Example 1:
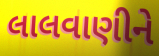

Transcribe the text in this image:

લાલવાણીને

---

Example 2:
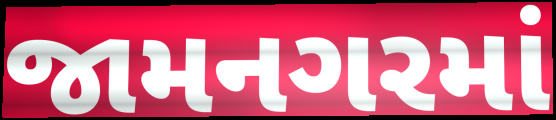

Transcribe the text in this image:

જામનગરમાં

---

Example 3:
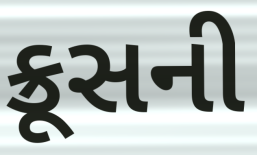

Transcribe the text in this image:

ક્રૂસની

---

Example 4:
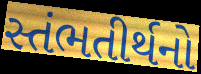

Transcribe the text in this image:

સ્તંભતીર્થનો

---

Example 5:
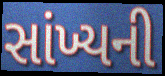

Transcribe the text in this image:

સાંખ્યની